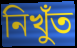
নিখুঁত